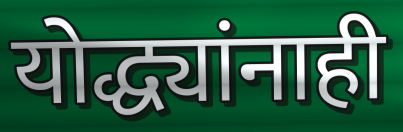
योद्ध्यांनाही